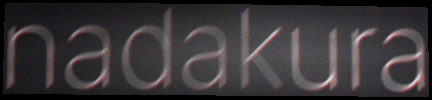
nadakura